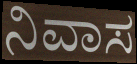
ನಿವಾಸ